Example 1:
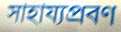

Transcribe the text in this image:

সাহায্যপ্রবণ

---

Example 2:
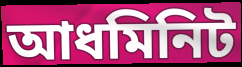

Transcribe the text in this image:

আধমিনিট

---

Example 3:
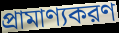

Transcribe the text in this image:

প্রামাণ্যকরণ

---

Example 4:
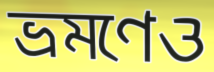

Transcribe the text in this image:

ভ্রমণেও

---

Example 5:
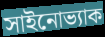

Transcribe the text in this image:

সাইনোভ্যাক